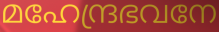
മഹേന്ദ്രഭവനേ